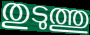
തുടുത്തു